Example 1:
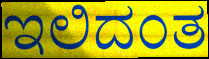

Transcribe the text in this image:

ಇಲಿದಂತ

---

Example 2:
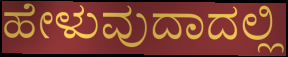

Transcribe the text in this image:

ಹೇಳುವುದಾದಲ್ಲಿ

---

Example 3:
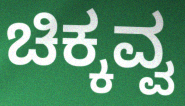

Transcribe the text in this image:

ಚಿಕ್ಕವ್ವ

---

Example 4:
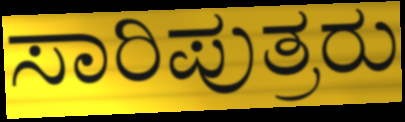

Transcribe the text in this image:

ಸಾರಿಪುತ್ರರು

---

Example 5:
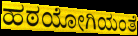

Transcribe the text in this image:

ಹಠಯೋಗಿಯಂತೆ